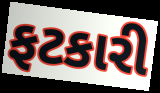
ફટકારી